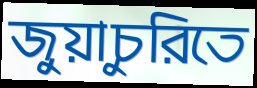
জুয়াচুরিতে